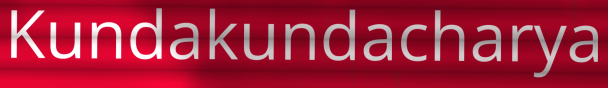
Kundakundacharya